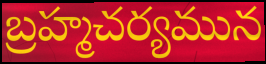
బ్రహ్మచర్యమున